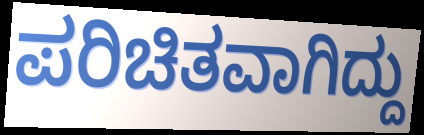
ಪರಿಚಿತವಾಗಿದ್ದು